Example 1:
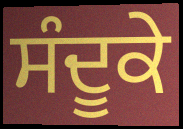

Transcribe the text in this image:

ਸੰਦੂਕੇ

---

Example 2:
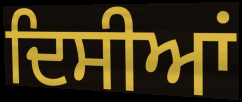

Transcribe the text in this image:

ਦਿਸੀਆਂ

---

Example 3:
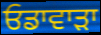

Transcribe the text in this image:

ਓਡਾਵਾੜਾ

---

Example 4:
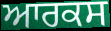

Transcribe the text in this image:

ਆਰਕਸ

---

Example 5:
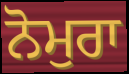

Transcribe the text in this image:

ਨੋਮੁਰਾ